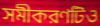
সমীকরণটিও